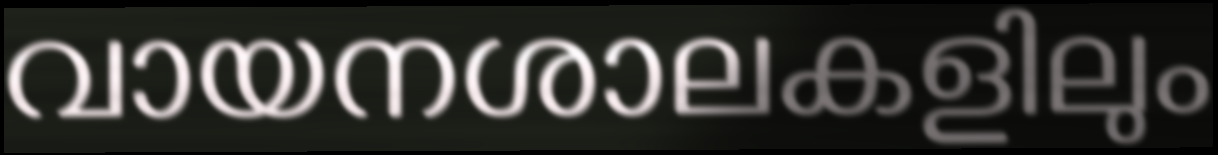
വായനശാലകളിലും